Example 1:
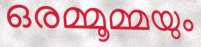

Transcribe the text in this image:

ഒരമ്മൂമ്മയും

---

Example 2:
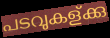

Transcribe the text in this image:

പടവുകള്ക്കു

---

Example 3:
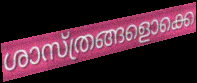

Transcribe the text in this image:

ശാസ്ത്രങ്ങളൊക്കെ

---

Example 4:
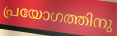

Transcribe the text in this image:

പ്രയോഗത്തിനു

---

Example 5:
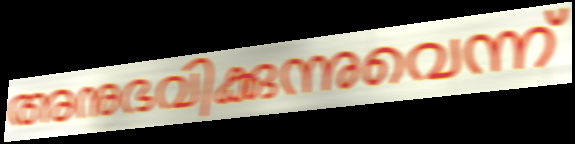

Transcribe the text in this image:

അനുഭവിക്കുന്നുവെന്ന്